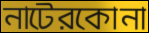
নাটেরকোনা